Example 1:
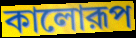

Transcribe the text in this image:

কালোরূপ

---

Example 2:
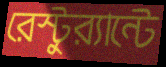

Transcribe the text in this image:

রেস্টুর‍্যান্টে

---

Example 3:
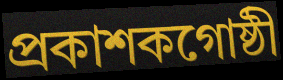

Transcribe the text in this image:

প্রকাশকগোষ্ঠী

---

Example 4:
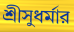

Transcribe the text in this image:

শ্রীসুধর্মার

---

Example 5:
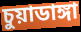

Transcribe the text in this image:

চুয়াডাঙ্গা